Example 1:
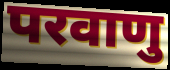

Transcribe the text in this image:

परवाणु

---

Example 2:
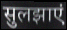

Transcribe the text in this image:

सुलझाएं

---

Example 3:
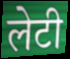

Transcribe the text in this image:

लेटी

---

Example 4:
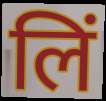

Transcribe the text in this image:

लिं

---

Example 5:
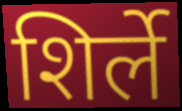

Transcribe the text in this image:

शिर्ले